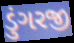
ડુંગરજી